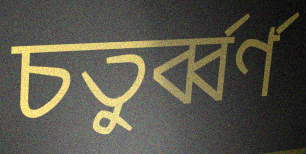
চতুর্ব্বর্ণ